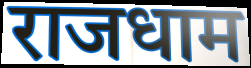
राजधाम